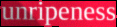
unripeness